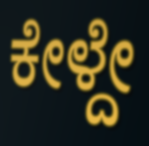
ಕೇಳ್ದೇ